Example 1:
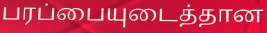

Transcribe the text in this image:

பரப்பையுடைத்தான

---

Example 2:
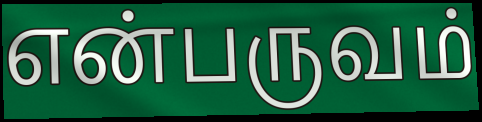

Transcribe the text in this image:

என்பருவம்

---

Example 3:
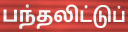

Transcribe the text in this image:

பந்தலிட்டுப்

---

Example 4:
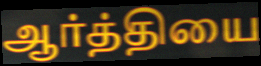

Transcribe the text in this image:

ஆர்த்தியை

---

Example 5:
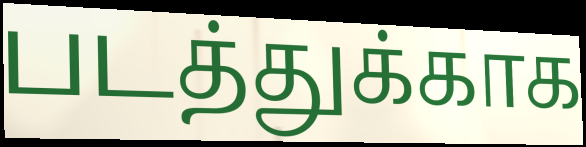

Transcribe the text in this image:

படத்துக்காக